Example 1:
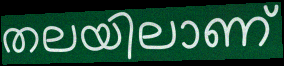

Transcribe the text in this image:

തലയിലാണ്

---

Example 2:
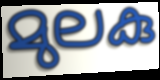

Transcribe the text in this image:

മുലകു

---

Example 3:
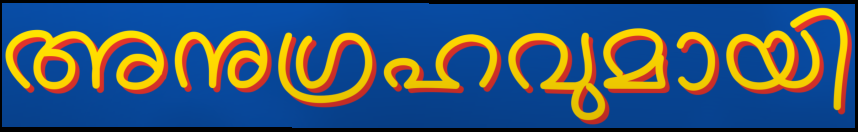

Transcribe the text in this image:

അനുഗ്രഹവുമായി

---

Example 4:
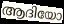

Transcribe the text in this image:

ആദിയോ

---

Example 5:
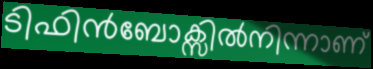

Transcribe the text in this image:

ടിഫിൻബോക്സിൽനിന്നാണ്